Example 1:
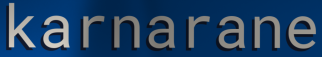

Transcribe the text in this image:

karnarane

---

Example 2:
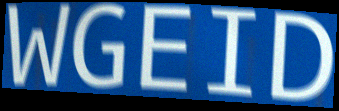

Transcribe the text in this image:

WGEID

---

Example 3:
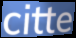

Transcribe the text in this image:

citte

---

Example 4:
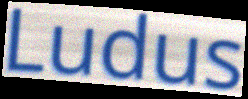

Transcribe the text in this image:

Ludus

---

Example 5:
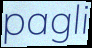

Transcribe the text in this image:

pagli